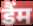
डैंम